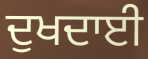
ਦੁਖਦਾਈ